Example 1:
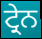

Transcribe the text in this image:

ਟ੍ਰੇਨ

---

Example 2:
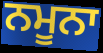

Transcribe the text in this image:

ਨਮੂਨਾ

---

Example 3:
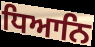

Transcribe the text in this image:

ਧਿਆਨਿ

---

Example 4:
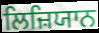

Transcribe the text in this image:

ਲਿਜ਼ਿਯਾਨ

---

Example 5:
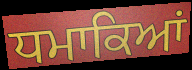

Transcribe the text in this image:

ਧਮਾਕਿਆਂ